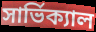
সার্ভিক্যাল